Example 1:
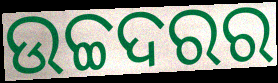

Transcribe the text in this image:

ଉଚ୍ଚଦରର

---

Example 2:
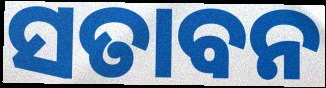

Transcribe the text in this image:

ସତାବନ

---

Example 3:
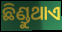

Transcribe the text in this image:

ଛିଣ୍ଡୁଥାଏ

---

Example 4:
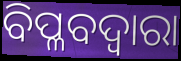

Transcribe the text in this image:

ବିପ୍ଳବଦ୍ୱାରା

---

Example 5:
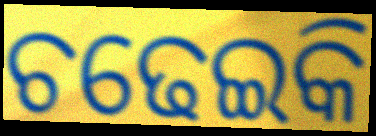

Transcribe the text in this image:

ଚଢେଇକି